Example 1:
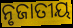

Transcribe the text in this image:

ନୃଜାତୀୟ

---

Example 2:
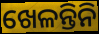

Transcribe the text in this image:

ଖେଳନ୍ତିନି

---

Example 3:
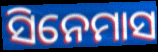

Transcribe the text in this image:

ସିନେମାସ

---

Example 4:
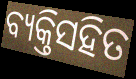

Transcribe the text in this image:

ବ୍ୟକ୍ତିସହିତ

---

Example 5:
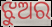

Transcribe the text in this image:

ଝୁଅର